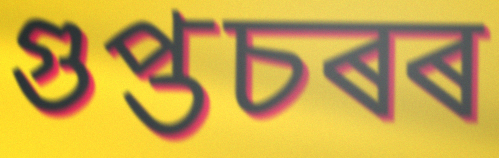
গুপ্তচৰৰ